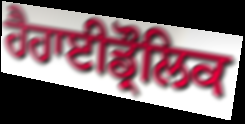
ਹੈਹਾਈਡ੍ਰੌਲਿਕ